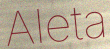
Aleta